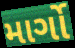
માર્ગો